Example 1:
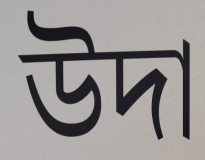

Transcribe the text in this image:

উদা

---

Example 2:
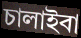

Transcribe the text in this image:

চালাইবা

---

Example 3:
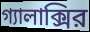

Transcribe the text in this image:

গ্যালাক্সির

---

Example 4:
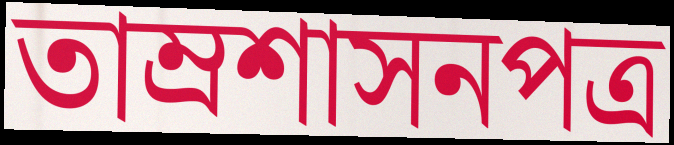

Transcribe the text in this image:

তাম্রশাসনপত্র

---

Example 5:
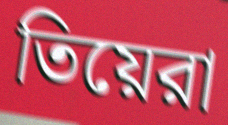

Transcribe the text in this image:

তিয়েরা